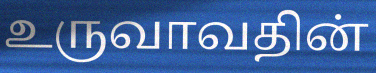
உருவாவதின்